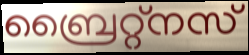
ബ്രൈറ്റ്നസ്